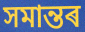
সমান্তৰ